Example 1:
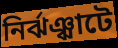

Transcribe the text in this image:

নির্ঝঞ্ঝাটে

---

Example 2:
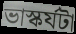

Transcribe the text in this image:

ভাস্কর্যটা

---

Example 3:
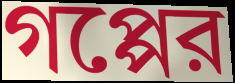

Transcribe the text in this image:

গপ্পের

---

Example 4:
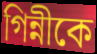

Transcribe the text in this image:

গিন্নীকে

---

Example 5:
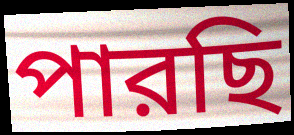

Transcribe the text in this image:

পারছি